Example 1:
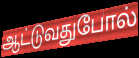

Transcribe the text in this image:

ஆட்டுவதுபோல்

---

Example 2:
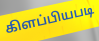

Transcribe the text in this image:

கிளப்பியபடி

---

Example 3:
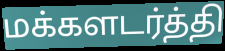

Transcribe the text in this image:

மக்களடர்த்தி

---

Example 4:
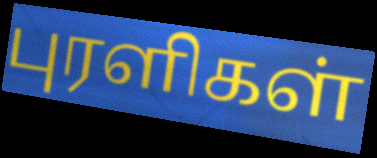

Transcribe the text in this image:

புரளிகள்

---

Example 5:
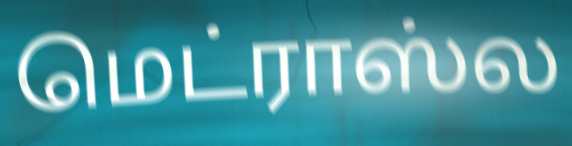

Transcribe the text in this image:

மெட்ராஸ்ல